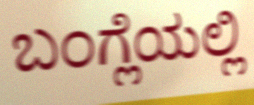
ಬಂಗ್ಲೆಯಲ್ಲಿ